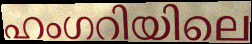
ഹംഗറിയിലെ